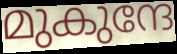
മുകുന്ദേ